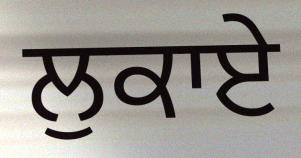
ਲੁਕਾਏ